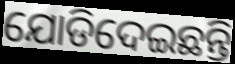
ଯୋଡିଦେଇଛନ୍ତି